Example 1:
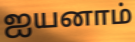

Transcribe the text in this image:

ஐயனாம்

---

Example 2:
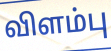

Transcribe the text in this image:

விளம்பு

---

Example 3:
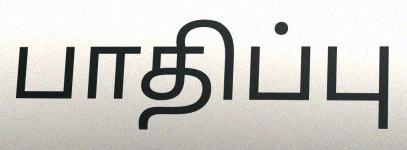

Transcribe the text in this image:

பாதிப்பு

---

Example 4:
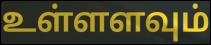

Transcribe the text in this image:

உள்ளளவும்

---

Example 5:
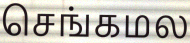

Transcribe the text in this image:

செங்கமல